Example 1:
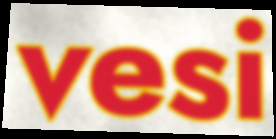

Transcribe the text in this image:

vesi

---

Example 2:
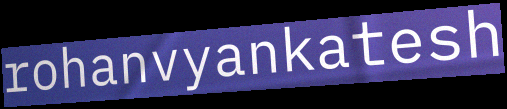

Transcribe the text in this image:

rohanvyankatesh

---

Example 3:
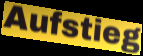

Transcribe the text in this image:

Aufstieg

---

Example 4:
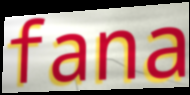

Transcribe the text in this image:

fana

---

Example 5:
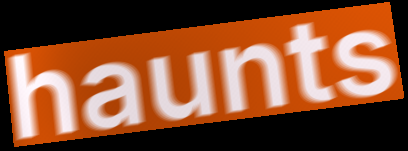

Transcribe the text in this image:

haunts